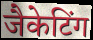
जैकेटिंग